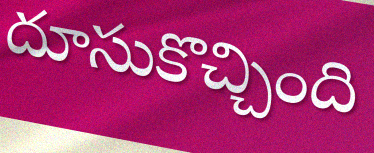
దూసుకొచ్చింది